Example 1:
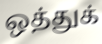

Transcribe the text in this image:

ஒத்துக்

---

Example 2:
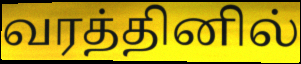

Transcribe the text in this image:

வரத்தினில்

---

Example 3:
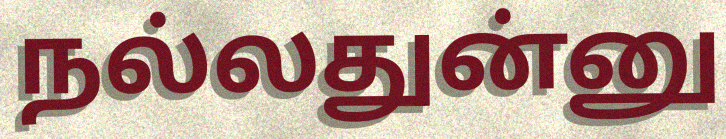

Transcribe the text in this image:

நல்லதுன்னு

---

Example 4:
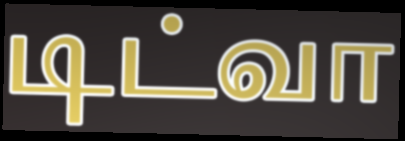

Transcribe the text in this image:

டிட்வா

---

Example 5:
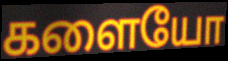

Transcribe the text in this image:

களையோ